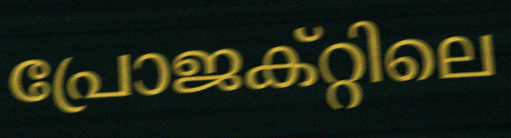
പ്രോജക്റ്റിലെ